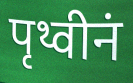
पृथ्वीनं